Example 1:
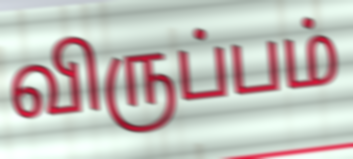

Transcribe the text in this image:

விருப்பம்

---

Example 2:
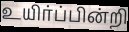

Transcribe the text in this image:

உயிர்ப்பின்றி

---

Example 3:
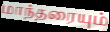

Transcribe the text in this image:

மாந்தரையும்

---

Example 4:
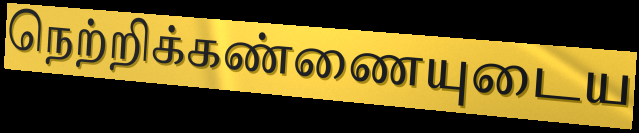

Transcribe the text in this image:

நெற்றிக்கண்ணையுடைய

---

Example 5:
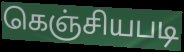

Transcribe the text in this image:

கெஞ்சியபடி